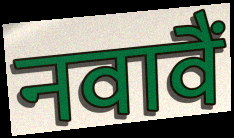
नवावैं